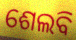
ଶେଲବି